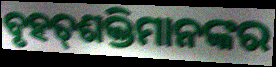
ବୃହତ୍‌ଶକ୍ତିମାନଙ୍କର